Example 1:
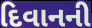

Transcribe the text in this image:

દિવાનની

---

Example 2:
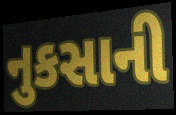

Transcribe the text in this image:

નુકસાની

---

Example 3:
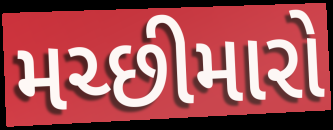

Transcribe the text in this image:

મચ્છીમારો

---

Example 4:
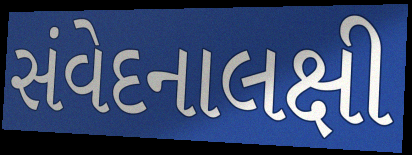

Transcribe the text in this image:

સંવેદનાલક્ષી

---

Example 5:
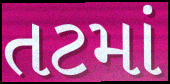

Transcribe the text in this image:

તટમાં